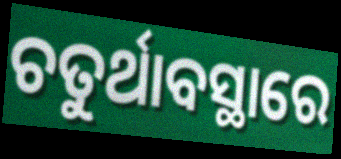
ଚତୁର୍ଥାବସ୍ଥାରେ